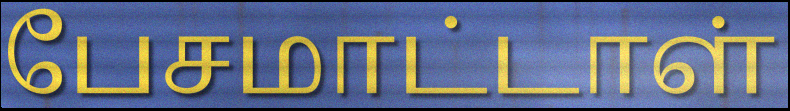
பேசமாட்டாள்